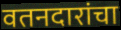
वतनदारांचा